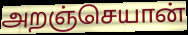
அறஞ்செயான்